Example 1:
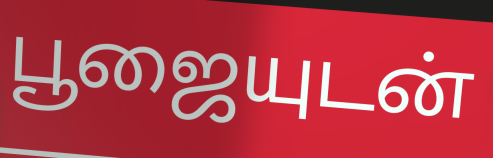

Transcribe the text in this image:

பூஜையுடன்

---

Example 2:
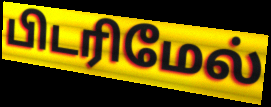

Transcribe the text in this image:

பிடரிமேல்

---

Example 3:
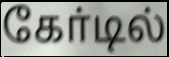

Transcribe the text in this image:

கேர்டில்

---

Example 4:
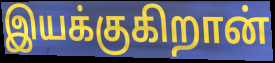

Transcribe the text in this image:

இயக்குகிறான்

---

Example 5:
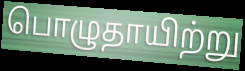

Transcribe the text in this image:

பொழுதாயிற்று